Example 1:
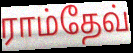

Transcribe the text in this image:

ராம்தேவ்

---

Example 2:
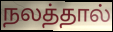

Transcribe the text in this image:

நலத்தால்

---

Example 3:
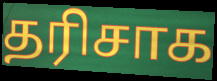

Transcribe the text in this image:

தரிசாக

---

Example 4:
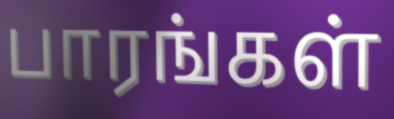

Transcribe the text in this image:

பாரங்கள்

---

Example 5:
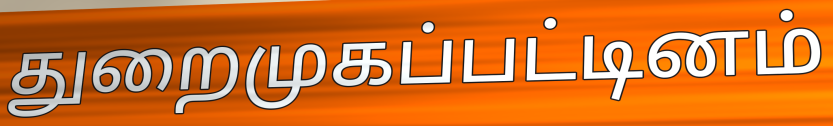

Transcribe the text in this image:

துறைமுகப்பட்டினம்